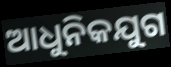
ଆଧୁନିକଯୁଗ